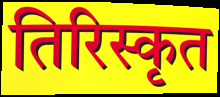
तिरिस्कृत